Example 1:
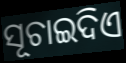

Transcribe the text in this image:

ସୂଚାଇଦିଏ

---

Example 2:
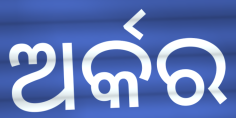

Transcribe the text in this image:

ଅର୍କର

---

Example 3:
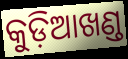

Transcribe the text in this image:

କୁଡ଼ିଆଖଣ୍ଡ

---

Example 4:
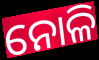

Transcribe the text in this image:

ନୋଳି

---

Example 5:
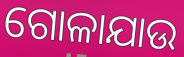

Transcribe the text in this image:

ଗୋଳାଯାଉ